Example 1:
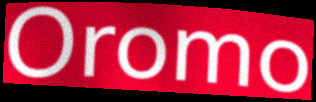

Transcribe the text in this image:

Oromo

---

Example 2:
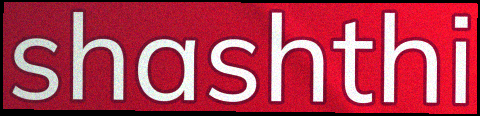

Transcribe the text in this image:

shashthi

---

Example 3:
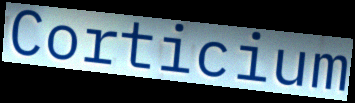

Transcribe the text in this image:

Corticium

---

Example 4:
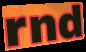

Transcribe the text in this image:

rnd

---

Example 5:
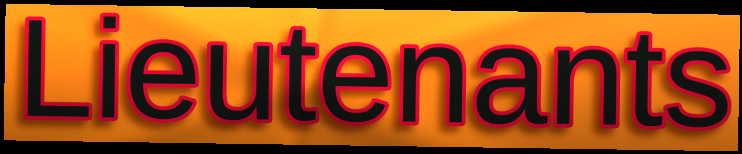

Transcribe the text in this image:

Lieutenants